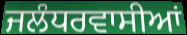
ਜਲੰਧਰਵਾਸੀਆਂ